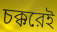
চক্করেই